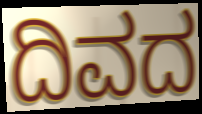
ದಿವದ